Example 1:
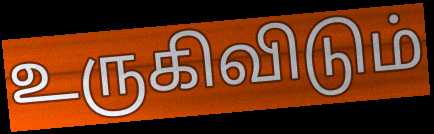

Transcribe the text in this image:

உருகிவிடும்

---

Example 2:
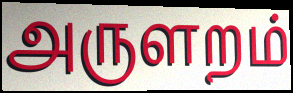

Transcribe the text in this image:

அருளறம்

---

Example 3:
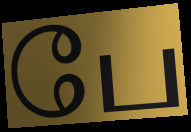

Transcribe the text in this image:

பே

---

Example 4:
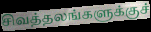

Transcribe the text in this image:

சிவத்தலங்களுக்குச்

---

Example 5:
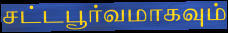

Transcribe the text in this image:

சட்டபூர்வமாகவும்